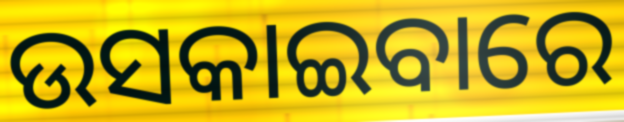
ଉସକାଇବାରେ